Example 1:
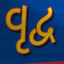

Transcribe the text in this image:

વૃદ્વ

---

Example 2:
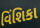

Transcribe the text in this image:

વિંશિકા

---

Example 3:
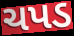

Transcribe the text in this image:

ચપડ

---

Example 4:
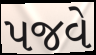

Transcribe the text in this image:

પજવે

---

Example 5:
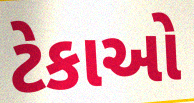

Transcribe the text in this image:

ટેકાઓ